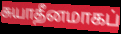
சுயாதீனமாகப்